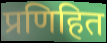
प्रणिहित